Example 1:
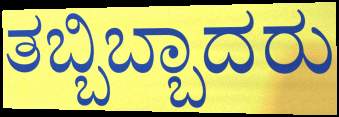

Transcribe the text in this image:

ತಬ್ಬಿಬ್ಬಾದರು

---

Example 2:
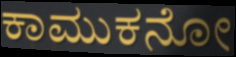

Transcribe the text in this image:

ಕಾಮುಕನೋ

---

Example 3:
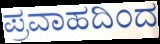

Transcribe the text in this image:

ಪ್ರವಾಹದಿಂದ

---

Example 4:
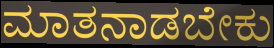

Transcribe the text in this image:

ಮಾತನಾಡಬೇಕು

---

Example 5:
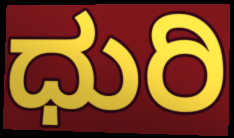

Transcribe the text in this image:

ಧುರಿ